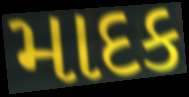
માદક